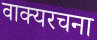
वाक्यरचना